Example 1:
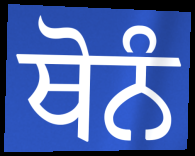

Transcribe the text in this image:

ਥੋਨੰ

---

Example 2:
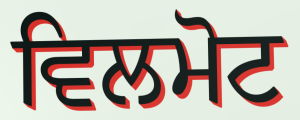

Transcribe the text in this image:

ਵਿਲਮੋਟ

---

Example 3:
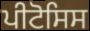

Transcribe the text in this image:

ਪੀਟੋਸਿਸ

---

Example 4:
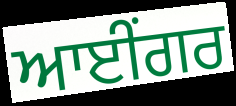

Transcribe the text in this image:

ਆਈਂਗਰ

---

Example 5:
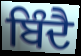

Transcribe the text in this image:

ਬਿੰਦੈ